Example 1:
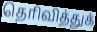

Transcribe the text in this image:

தெரிவித்துக்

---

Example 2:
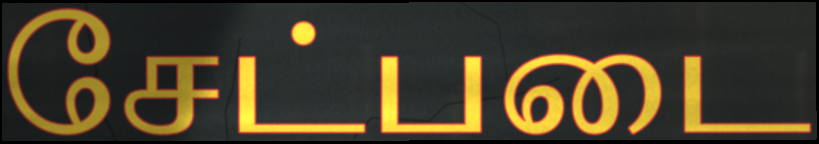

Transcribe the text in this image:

சேட்படை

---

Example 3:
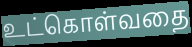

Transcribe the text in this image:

உட்கொள்வதை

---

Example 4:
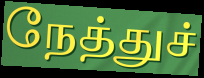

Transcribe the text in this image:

நேத்துச்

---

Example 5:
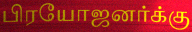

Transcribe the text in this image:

பிரயோஜனர்க்கு